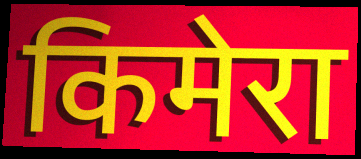
किमेरा